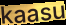
kaasu